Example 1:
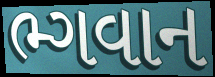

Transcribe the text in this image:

ભ્ગવાન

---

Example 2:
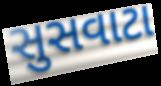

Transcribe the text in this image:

સુસવાટા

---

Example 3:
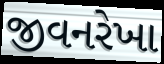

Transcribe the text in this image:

જીવનરેખા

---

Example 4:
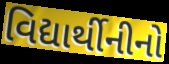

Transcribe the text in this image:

વિદ્યાર્થીનીનો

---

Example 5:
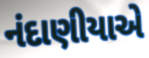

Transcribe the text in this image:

નંદાણીયાએ